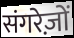
संगरेज़ों